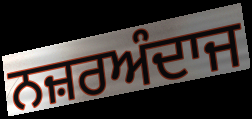
ਨਜ਼ਰਅੰਦਾਜ